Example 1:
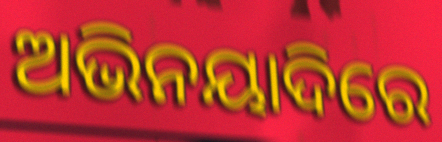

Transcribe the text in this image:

ଅଭିନୟାଦିରେ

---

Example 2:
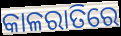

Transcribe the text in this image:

କାଳରାତିରେ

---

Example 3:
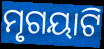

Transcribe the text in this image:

ମୃଗୟାଟି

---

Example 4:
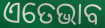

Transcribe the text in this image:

ଏତେଭାବ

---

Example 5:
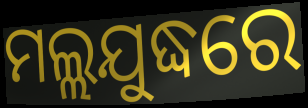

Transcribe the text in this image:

ମଲ୍ଲଯୁଦ୍ଧରେ